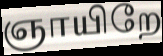
ஞாயிறே